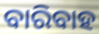
ବାରିବାହ